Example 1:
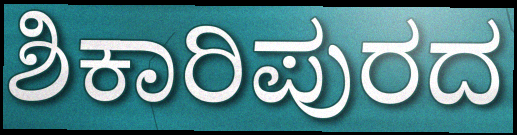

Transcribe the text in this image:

ಶಿಕಾರಿಪುರದ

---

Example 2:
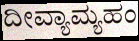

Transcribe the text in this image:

ದೀವ್ಯಾಮ್ಯಹಂ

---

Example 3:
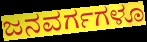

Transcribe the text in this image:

ಜನವರ್ಗಗಳೂ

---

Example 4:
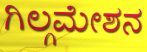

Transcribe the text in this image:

ಗಿಲ್ಗಮೇಶನ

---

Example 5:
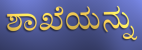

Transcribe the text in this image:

ಶಾಖೆಯನ್ನು